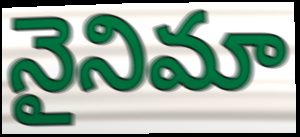
నైనిమా